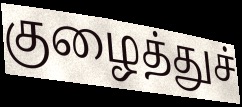
குழைத்துச்